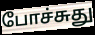
போச்சுது